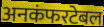
अनकंफरटेबल